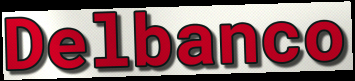
Delbanco